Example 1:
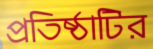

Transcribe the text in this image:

প্রতিষ্ঠাটির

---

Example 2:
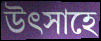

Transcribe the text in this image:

উৎসাহে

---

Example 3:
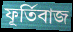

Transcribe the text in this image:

ফূর্তিবাজ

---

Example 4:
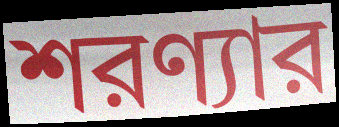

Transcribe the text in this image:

শরণ্যার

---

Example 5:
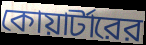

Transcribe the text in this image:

কোয়ার্টারের